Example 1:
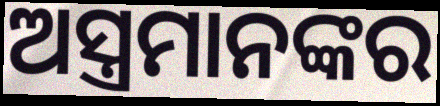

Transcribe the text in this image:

ଅସ୍ତ୍ରମାନଙ୍କର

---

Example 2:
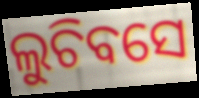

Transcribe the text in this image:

ଲୁଚିବସେ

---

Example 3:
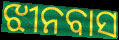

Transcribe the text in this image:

ଝୀନବାସ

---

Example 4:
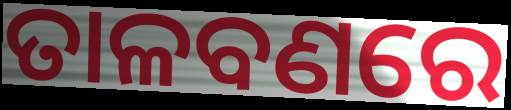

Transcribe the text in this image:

ତାଳବଣରେ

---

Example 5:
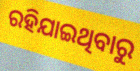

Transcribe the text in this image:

ରହିଯାଇଥିବାରୁ